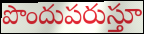
పొందుపరుస్తూ